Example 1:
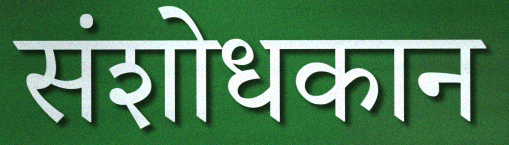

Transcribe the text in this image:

संशोधकान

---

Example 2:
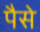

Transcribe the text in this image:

पैसे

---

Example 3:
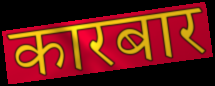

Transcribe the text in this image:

कारबार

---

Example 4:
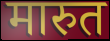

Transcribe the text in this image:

मारुत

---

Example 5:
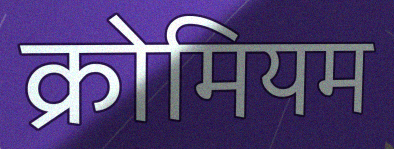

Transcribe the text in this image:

क्रोमियम